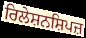
ਰਿਲੇਸ਼ਨਸ਼ਿਪਜ਼